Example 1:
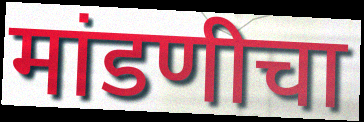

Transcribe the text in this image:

मांडणीचा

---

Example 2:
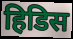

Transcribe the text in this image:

हिडिस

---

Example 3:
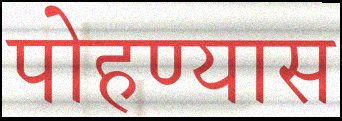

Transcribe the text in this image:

पोहण्यास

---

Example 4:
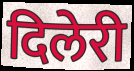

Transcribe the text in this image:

दिलेरी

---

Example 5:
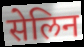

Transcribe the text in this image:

सेलिन